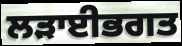
ਲੜਾਈਭਗਤ